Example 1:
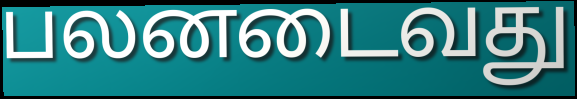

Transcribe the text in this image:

பலனடைவது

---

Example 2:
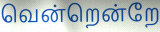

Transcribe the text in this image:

வென்றென்றே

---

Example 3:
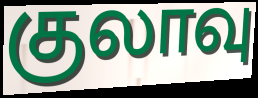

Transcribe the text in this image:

குலாவு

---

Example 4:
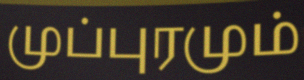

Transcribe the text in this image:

முப்புரமும்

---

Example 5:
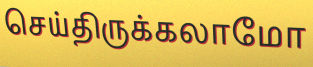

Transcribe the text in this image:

செய்திருக்கலாமோ